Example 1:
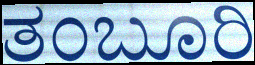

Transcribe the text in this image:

ತಂಬೂರಿ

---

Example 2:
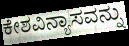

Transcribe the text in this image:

ಕೇಶವಿನ್ಯಾಸವನ್ನು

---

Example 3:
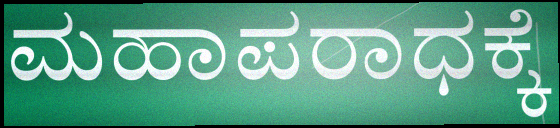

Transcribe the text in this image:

ಮಹಾಪರಾಧಕ್ಕೆ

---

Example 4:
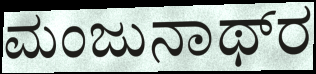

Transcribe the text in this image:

ಮಂಜುನಾಥ್‌ರ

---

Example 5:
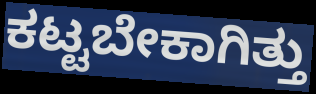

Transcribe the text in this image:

ಕಟ್ಟಬೇಕಾಗಿತ್ತು